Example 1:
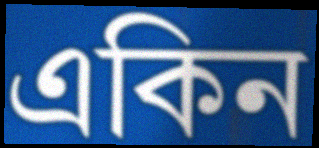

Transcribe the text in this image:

একিন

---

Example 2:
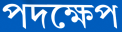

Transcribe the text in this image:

পদক্ষেপ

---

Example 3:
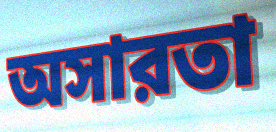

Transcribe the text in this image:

অসারতা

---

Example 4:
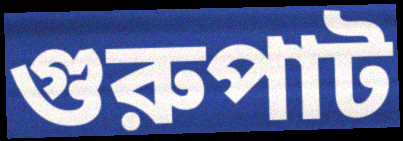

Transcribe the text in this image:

গুরুপাট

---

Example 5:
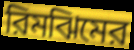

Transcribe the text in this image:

রিমঝিমের